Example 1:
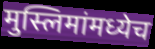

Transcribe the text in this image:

मुस्लिमांमध्येच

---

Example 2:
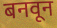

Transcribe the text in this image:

बनवून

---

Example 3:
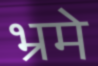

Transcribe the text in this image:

भ्रमे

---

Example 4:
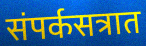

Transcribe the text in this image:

संपर्कसत्रात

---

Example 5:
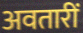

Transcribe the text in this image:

अवतारीं